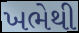
ખભેથી